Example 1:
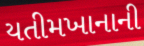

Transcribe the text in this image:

યતીમખાનાની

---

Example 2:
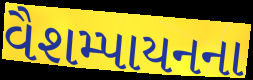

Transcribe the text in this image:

વૈશમ્પાયનના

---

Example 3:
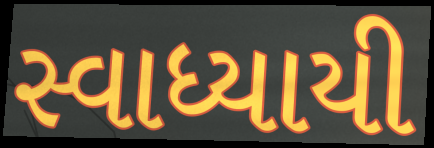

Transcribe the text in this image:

સ્વાધ્યાયી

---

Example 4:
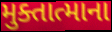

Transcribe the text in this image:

મુક્તાત્માના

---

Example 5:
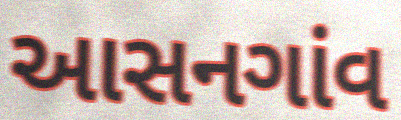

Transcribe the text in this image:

આસનગાંવ